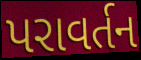
પરાવર્તન